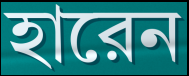
হারেন